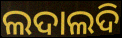
ଲଦାଲଦି